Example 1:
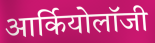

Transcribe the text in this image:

आर्कियोलॉजी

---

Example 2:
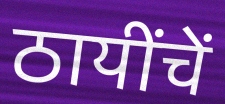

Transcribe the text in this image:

ठायींचें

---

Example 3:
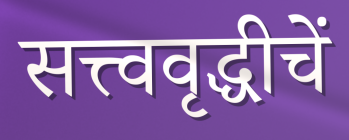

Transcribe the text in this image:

सत्त्ववृद्धीचें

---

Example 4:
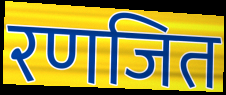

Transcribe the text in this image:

रणजित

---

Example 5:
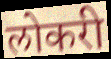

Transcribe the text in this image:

लोकरी